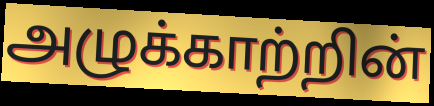
அழுக்காற்றின்